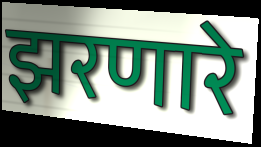
झरणारे